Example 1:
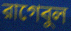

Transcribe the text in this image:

রাগেবুল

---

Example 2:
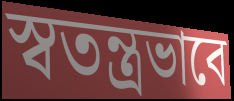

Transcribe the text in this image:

স্বতন্ত্রভাবে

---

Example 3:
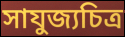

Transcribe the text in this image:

সাযুজ্যচিত্র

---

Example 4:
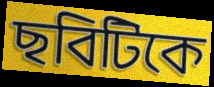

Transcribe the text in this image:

ছবিটিকে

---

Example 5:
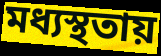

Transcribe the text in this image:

মধ্যস্থতায়